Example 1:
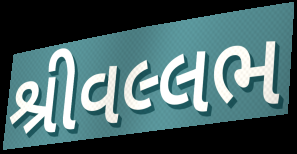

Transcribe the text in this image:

શ્રીવલ્લભ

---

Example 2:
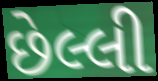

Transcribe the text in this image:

છેલ્લી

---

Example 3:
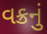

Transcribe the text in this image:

વક્રનું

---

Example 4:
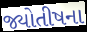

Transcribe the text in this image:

જ્યોતીષના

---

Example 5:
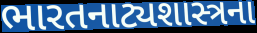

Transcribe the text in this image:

ભારતનાટ્યશાસ્ત્રના